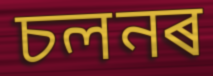
চলনৰ